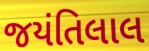
જયંતિલાલ